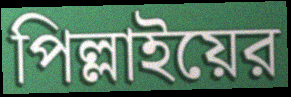
পিল্লাইয়ের